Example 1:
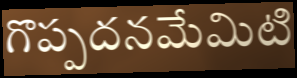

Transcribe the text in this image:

గొప్పదనమేమిటి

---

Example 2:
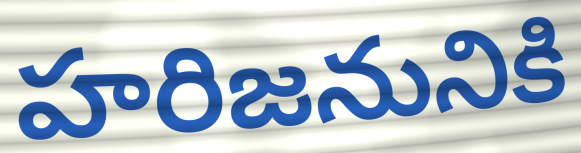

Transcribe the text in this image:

హరిజనునికి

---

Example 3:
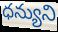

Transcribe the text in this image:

ధన్యుని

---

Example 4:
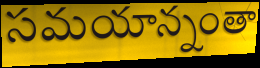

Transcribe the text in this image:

సమయాన్నంతా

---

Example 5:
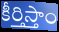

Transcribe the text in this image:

కీర్తిస్తాం